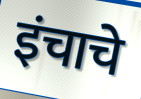
इंचाचे